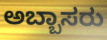
ಅಬ್ಬಾಸರು